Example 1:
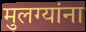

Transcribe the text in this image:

मुलग्यांना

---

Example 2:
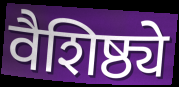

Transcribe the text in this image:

वैशिष्ठ्ये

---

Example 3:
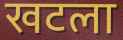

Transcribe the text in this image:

खटला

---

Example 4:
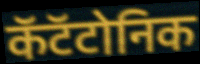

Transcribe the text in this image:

कॅटॅटोनिक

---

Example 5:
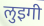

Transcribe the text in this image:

लुइगी